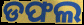
ଡଫଲ